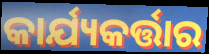
କାର୍ଯ୍ୟକର୍ତ୍ତାର